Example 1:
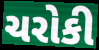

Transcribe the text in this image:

ચરોકી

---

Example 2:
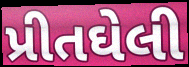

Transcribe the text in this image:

પ્રીતઘેલી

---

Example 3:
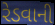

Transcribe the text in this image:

રેડવાની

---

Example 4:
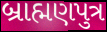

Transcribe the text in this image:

બ્રાહ્મણપુત્ર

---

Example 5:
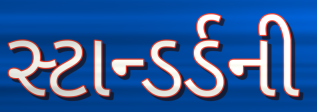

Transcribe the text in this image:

સ્ટાન્ડર્ડની